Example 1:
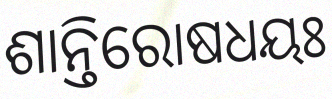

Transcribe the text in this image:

ଶାନ୍ତିରୋଷଧୟଃ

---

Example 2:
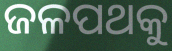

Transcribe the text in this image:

ଜଳପଥକୁ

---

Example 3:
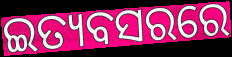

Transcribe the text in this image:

ଇତ୍ୟବସରରେ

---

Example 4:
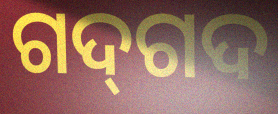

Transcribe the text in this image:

ଗଦ୍‍ଗଦ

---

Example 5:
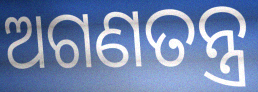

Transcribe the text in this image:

ଅଗଣତନ୍ତ୍ର